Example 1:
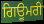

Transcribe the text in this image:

ਗਿਊਮਰੀ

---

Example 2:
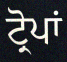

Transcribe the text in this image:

ਟ੍ਰੋਪਾਂ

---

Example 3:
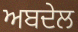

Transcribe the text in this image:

ਅਬਦੇਲ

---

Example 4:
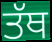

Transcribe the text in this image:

ਤੱਥ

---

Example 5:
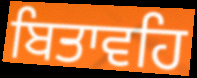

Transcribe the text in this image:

ਬਿਤਾਵਹਿ